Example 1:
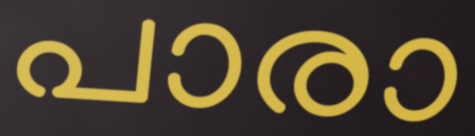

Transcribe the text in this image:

പാരാ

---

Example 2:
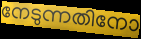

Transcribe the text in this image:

നേടുന്നതിനോ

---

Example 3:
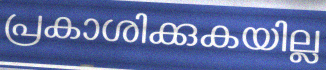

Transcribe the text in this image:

പ്രകാശിക്കുകയില്ല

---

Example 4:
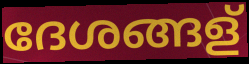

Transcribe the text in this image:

ദേശങ്ങള്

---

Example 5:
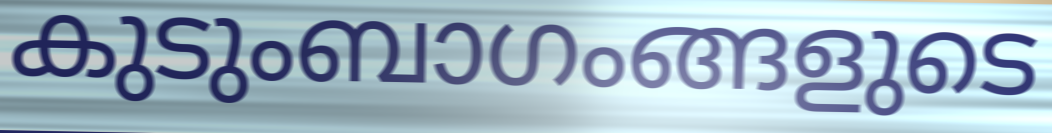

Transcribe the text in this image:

കുടുംബാഗംങ്ങളുടെ